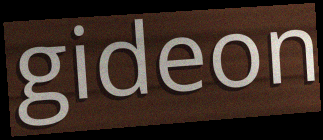
gideon